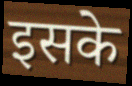
इसके